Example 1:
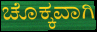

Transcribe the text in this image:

ಚೊಕ್ಕವಾಗಿ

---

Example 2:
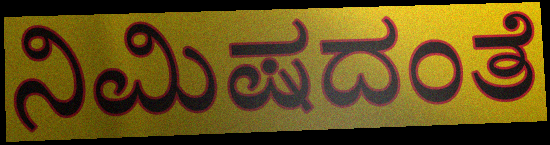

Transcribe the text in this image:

ನಿಮಿಷದಂತೆ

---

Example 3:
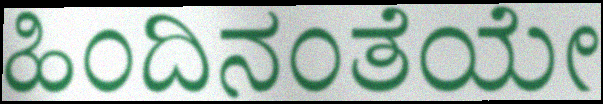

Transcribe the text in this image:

ಹಿಂದಿನಂತೆಯೇ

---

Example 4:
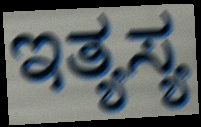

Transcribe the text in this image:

ಇತ್ಯಸ್ಯ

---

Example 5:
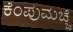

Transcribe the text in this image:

ಕೆಂಪುಮಚ್ಚೆ